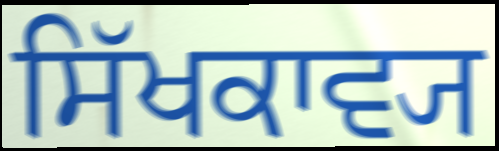
ਸਿੱਖਕਾਵ੍ਯ